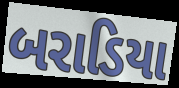
બરાડિયા